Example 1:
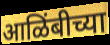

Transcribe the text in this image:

आळिंबीच्या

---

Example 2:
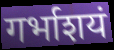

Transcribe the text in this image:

गर्भाशयं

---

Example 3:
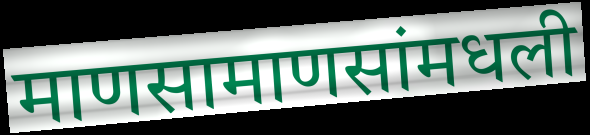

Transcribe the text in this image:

माणसामाणसांमधली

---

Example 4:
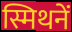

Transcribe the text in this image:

स्मिथनें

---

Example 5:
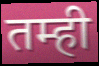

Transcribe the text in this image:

तम्ही